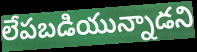
లేపబడియున్నాడని